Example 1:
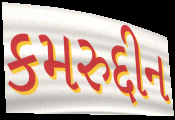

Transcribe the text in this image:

કમરુદ્દીન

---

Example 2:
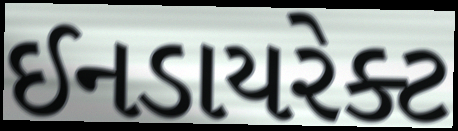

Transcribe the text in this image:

ઈનડાયરેક્ટ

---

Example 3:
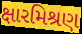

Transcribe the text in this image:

ક્ષારમિશ્રણ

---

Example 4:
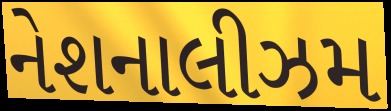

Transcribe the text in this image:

નેશનાલીઝમ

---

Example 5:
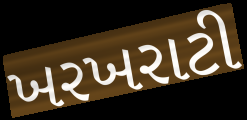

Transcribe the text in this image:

ખરખરાટી